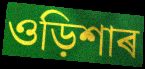
ওড়িশাৰ